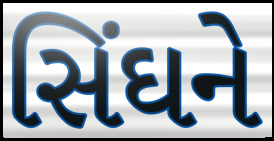
સિંઘને